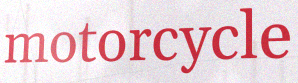
motorcycle